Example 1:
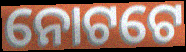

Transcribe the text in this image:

ନୋଟଟେ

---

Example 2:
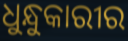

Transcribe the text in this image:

ଧୁନ୍ଧୁକାରୀର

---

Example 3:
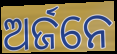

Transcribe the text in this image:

ଅର୍ଜନେ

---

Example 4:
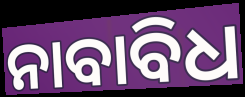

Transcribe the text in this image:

ନାବାବିଧ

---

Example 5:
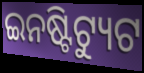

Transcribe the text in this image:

ଇନଷ୍ଟିଟ୍ୟୁଟ